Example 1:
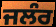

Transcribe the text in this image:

ਜਲੰਰ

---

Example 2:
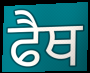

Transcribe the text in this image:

ਫੈਥ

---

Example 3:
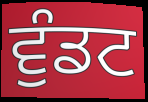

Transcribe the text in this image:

ਵੁੰਡਟ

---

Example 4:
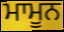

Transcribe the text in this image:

ਮਾਮੂਨ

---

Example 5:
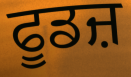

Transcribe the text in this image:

ਫੂਡਜ਼